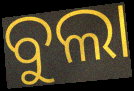
ବୁଲା